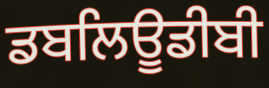
ਡਬਲਿਊਡੀਬੀ